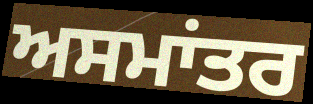
ਅਸਮਾਂਤਰ